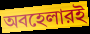
অবহেলারই